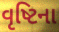
વૃષ્ટિના